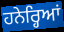
ਹਨੇਰ੍ਹਿਆਂ